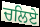
ਚਲਿਏ